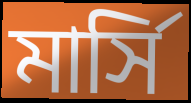
মার্সি